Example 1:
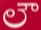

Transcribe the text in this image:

లౌ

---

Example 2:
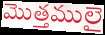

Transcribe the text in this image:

మొత్తములై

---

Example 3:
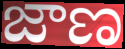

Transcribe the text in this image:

జాణ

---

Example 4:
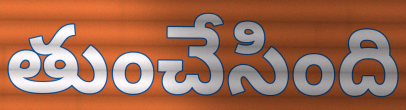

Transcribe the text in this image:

తుంచేసింది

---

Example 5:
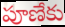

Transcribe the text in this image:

పూణేకు